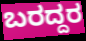
ಬರದ್ದರ